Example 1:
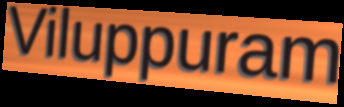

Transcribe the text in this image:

Viluppuram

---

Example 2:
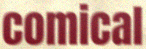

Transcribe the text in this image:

comical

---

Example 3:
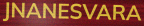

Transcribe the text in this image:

JNANESVARA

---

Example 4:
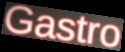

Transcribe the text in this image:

Gastro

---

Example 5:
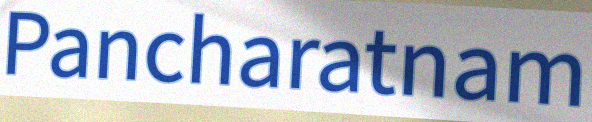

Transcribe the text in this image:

Pancharatnam